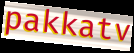
pakkatv